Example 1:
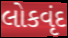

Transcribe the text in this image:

લોકવૃંદ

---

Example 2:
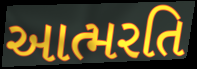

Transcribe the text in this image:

આત્મરતિ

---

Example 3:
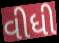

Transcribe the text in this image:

વીધી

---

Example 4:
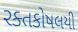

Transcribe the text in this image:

રક્તકોષલયી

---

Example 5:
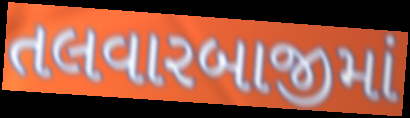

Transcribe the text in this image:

તલવારબાજીમાં